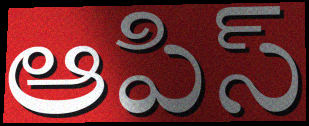
ఆపిస్